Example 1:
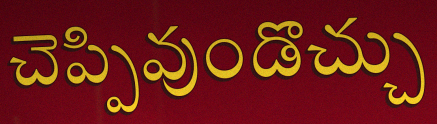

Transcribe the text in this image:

చెప్పివుండొచ్చు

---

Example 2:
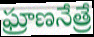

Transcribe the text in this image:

ఘ్రాణనేత్రే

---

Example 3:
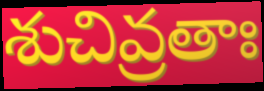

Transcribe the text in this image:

శుచివ్రతాః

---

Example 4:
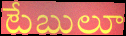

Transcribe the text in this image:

టేబులూ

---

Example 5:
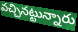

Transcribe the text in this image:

వచ్చినట్టున్నారు